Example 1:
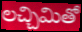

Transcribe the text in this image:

లచ్చిమితో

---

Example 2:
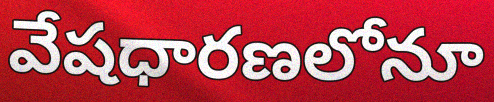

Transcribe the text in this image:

వేషధారణలోనూ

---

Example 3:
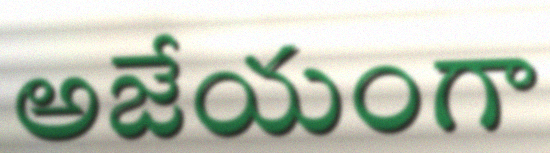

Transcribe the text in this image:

అజేయంగా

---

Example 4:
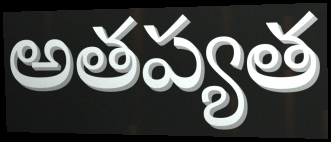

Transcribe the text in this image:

అతప్యత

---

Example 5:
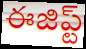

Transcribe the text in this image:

ఈజిప్ట్